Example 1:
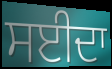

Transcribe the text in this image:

ਸਈਦਾ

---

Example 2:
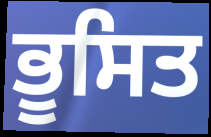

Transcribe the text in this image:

ਭੂਸਿਤ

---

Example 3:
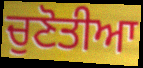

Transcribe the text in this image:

ਚੁਣੋਤੀਆ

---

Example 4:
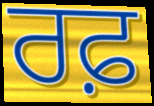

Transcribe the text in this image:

ਰਫ਼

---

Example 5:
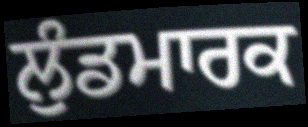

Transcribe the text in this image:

ਲੁੰਡਮਾਰਕ